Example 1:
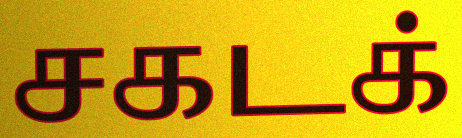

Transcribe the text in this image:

சகடக்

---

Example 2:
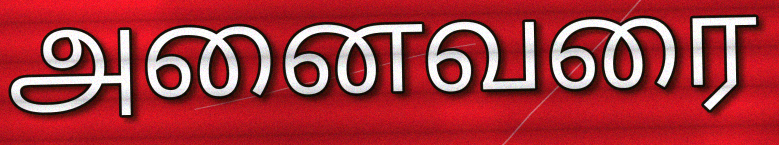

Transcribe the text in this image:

அனைவரை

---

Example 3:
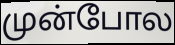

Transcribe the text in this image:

முன்போல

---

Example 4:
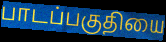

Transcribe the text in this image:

பாடப்பகுதியை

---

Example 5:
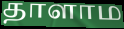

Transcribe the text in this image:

தாளாம